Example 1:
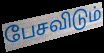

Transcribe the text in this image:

பேசவிடும்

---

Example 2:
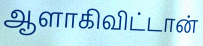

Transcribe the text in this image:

ஆளாகிவிட்டான்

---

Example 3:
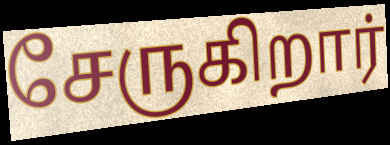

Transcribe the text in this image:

சேருகிறார்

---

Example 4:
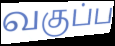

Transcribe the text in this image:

வகுப்ப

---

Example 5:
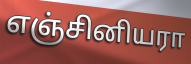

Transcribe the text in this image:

எஞ்சினியரா